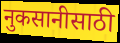
नुकसानीसाठी